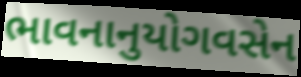
ભાવનાનુયોગવસેન